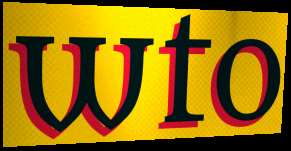
wto